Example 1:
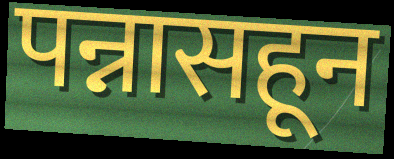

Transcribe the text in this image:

पन्नासहून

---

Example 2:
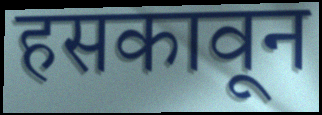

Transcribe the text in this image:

हसकावून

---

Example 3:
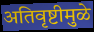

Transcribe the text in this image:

अतिवृष्टीमुळे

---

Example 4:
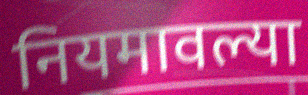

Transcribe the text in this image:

नियमावल्या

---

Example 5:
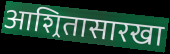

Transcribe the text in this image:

आश्रितासारखा